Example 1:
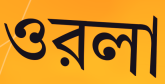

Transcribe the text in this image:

ওরলা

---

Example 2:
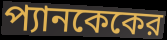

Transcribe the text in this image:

প্যানকেকের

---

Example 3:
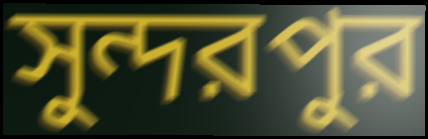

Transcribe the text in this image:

সুন্দরপুর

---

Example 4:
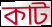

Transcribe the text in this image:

কাট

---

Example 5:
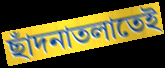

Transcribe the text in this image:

ছাঁদনাতলাতেই